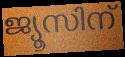
ജ്യൂസിന്